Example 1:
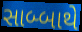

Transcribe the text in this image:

સાબ્બાથે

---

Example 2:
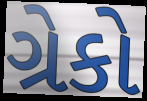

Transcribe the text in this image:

ગ્રેકો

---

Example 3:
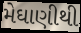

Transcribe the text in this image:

મેઘાણીથી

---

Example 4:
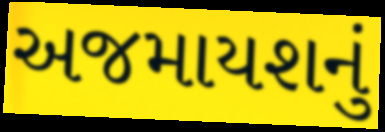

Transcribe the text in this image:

અજમાયશનું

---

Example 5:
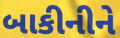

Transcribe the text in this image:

બાકીનીને